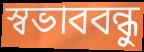
স্বভাববন্ধু